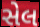
સેલ